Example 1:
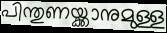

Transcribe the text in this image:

പിന്തുണയ്ക്കാനുമുള്ള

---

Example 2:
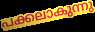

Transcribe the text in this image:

പക്കലാകുന്നു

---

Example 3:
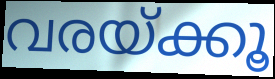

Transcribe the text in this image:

വരയ്ക്കൂ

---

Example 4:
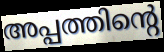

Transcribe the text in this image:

അപ്പത്തിന്റെ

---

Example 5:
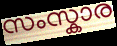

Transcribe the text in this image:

സംസ്കാര